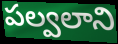
పల్వలాని